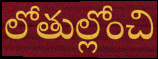
లోతుల్లోంచి